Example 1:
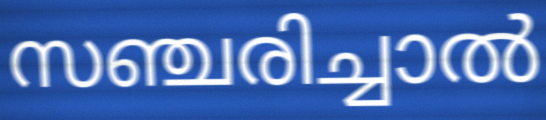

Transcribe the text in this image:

സഞ്ചരിച്ചാൽ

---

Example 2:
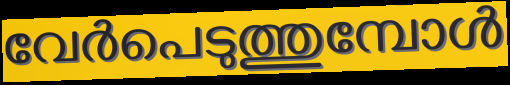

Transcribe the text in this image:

വേർപെടുത്തുമ്പോൾ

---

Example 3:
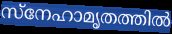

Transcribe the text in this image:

സ്നേഹാമൃതത്തിൽ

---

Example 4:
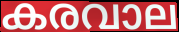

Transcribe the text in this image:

കരവാല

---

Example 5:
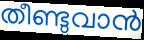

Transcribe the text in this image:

തീണ്ടുവാൻ